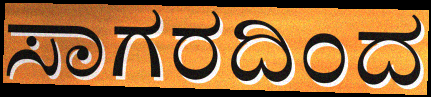
ಸಾಗರದಿಂದ